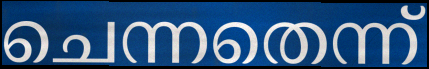
ചെന്നതെന്ന്